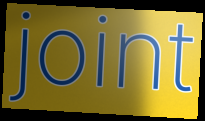
joint